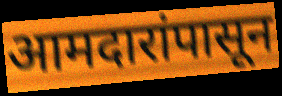
आमदारांपासून